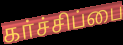
கர்ச்சிப்பை